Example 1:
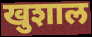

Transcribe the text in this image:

खुशाल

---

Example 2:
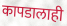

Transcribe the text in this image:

कापडालाही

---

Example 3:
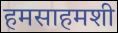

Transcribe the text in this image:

हमसाहमशी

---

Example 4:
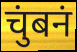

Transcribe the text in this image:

चुंबनं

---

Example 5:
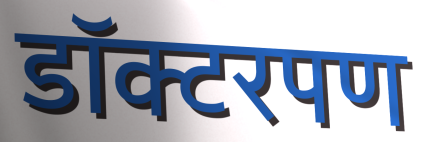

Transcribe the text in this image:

डॉक्टरपण